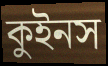
কুইনস